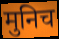
मुनिच